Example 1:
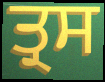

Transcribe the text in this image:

ਤ੍ਰਸ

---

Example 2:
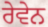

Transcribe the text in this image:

ਰੇਵੇਨ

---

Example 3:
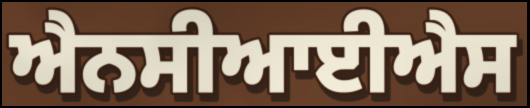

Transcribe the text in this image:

ਐਨਸੀਆਈਐਸ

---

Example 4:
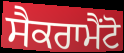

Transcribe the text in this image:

ਸੈਕਰਾਮੈਂਟੋ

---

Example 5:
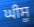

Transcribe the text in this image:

ਘੀਸੂ